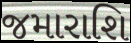
જમારાશિ